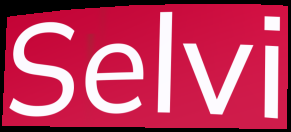
Selvi